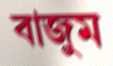
বাজুম